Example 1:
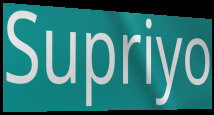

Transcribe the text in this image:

Supriyo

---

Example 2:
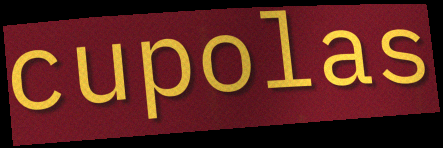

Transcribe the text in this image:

cupolas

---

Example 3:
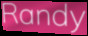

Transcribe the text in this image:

Randy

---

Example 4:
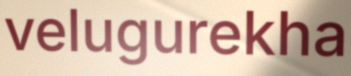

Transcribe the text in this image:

velugurekha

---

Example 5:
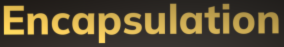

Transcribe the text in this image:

Encapsulation